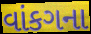
વાંકગના